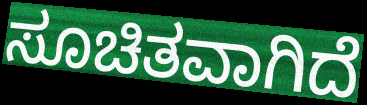
ಸೂಚಿತವಾಗಿದೆ